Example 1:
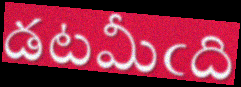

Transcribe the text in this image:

డటమీఁది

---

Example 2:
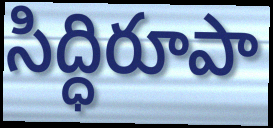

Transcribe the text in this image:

సిద్ధిరూపా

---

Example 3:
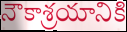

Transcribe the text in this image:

నౌకాశ్రయానికి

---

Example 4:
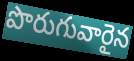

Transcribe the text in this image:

పొరుగువారైన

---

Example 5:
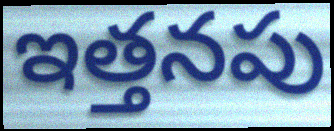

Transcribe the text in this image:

ఇత్తనపు